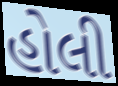
હોલી